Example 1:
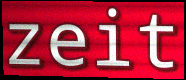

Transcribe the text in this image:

zeit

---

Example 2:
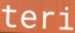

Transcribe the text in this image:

teri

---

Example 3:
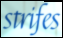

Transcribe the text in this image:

strifes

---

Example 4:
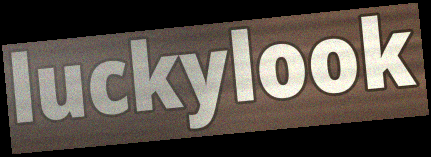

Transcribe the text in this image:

luckylook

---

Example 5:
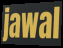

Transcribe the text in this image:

jawal